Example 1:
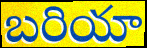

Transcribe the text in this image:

బరియా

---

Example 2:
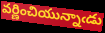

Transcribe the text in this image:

వర్ణించియున్నాఁడు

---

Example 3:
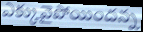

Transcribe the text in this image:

ఎక్కువైపోయిందన్న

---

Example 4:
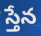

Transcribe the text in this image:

స్తేన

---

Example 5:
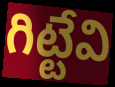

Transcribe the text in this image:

గిట్టేవి